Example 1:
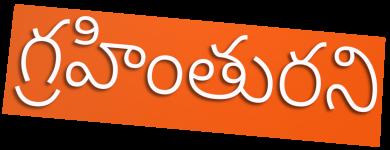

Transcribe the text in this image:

గ్రహింతురని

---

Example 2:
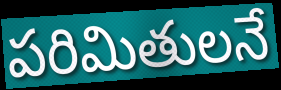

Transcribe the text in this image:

పరిమితులనే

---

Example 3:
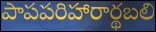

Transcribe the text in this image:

పాపపరిహారార్థబలి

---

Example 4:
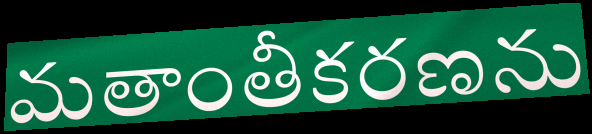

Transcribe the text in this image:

మతాంతీకరణను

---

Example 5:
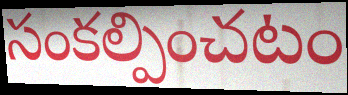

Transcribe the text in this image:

సంకల్పించటం